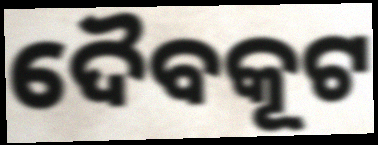
ଦୈବକୂଟ